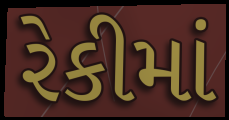
રેકીમાં